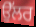
ਉੱਲਰ